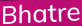
Bhatre